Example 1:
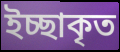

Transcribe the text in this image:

ইচ্ছাকৃত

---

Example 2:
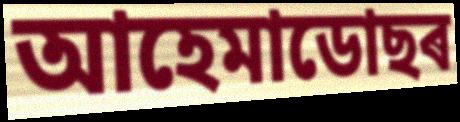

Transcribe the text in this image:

আহেমাডোছৰ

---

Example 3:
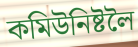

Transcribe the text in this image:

কমিউনিষ্টলৈ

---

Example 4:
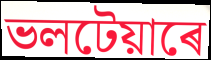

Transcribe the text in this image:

ভলটেয়াৰে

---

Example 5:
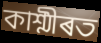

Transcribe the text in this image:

কাশ্মীৰত